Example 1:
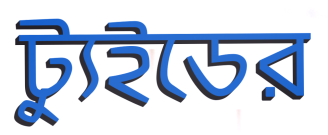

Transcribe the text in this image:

ট্যুইডের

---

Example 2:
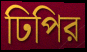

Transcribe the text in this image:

ঢিপির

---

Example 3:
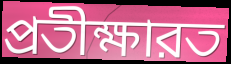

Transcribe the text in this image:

প্রতীক্ষারত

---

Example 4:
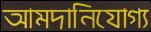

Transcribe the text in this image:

আমদানিযোগ্য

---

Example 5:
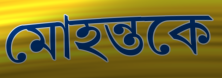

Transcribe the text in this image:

মোহন্তকে